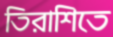
তিরাশিতে